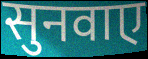
सुनवाए